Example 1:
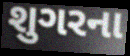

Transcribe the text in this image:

શુગરના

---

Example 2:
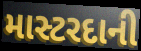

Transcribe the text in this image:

માસ્ટરદાની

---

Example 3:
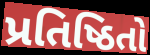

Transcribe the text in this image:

પ્રતિષ્ઠિતો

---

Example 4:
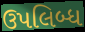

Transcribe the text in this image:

ઉપલિબ્ધ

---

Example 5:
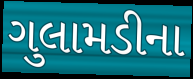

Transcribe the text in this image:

ગુલામડીના